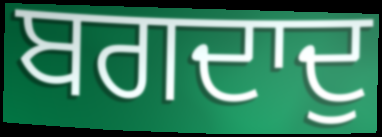
ਬਗਦਾਦੁ